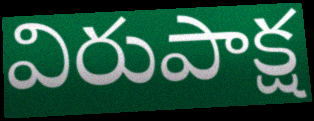
విరుపాక్ష